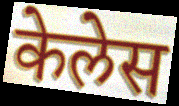
केलेस